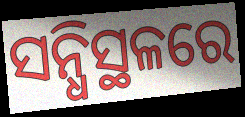
ସନ୍ଧିସ୍ଥଳରେ